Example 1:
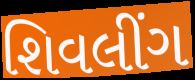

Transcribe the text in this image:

શિવલીંગ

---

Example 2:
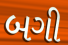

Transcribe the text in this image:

બગી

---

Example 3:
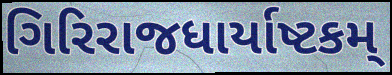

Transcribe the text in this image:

ગિરિરાજધાર્યાષ્ટકમ્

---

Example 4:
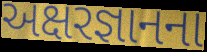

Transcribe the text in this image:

અક્ષરજ્ઞાનના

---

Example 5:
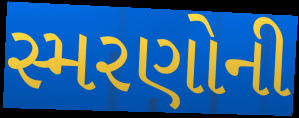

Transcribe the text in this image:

સ્મરણોની